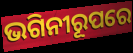
ଭଗିନୀରୂପରେ